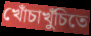
খোঁচাখুঁচিতে